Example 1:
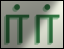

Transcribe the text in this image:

ர்ர்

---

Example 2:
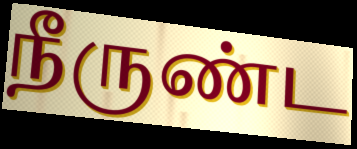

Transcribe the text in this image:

நீருண்ட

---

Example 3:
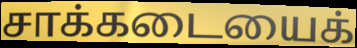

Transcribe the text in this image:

சாக்கடையைக்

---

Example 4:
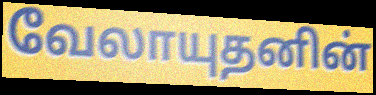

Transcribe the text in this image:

வேலாயுதனின்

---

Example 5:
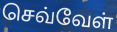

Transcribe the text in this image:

செவ்வேள்